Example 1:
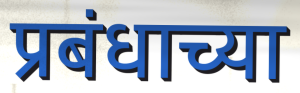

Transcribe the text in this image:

प्रबंधाच्या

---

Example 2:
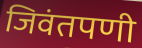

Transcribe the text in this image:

जिवंतपणी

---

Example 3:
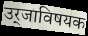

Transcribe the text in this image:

उर्जाविषयक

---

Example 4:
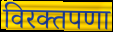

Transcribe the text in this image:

विरक्तपणा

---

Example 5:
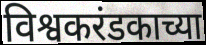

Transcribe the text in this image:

विश्वकरंडकाच्या